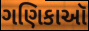
ગણિકાઑ